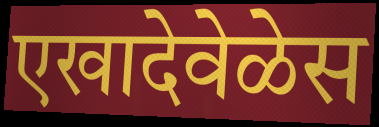
एखादेवेळेस